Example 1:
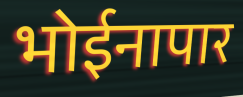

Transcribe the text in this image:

भोईनापार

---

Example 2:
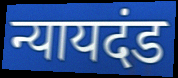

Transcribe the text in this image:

न्यायदंड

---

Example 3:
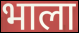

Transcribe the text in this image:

भाला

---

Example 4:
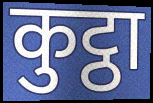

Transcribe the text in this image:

कुट्ठा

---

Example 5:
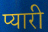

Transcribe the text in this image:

प्यारी